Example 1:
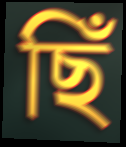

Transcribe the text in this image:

ছিঁ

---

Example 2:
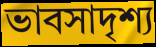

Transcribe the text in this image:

ভাবসাদৃশ্য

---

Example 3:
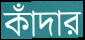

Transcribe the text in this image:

কাঁদার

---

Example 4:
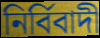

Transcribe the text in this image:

নির্বিবাদী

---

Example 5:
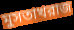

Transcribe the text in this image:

মুসতাখরাজ